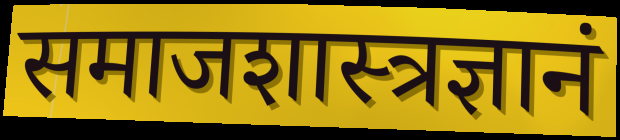
समाजशास्त्रज्ञानं